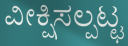
ವೀಕ್ಷಿಸಲ್ಪಟ್ಟ